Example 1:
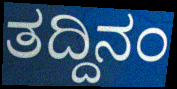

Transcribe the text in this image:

ತದ್ದಿನಂ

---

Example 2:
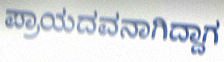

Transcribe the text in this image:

ಪ್ರಾಯದವನಾಗಿದ್ದಾಗ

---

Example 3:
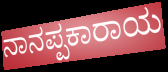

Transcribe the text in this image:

ನಾನಪ್ಪಕಾರಾಯ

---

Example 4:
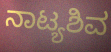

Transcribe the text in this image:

ನಾಟ್ಯಶಿವ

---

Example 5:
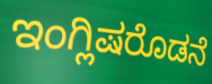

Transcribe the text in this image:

ಇಂಗ್ಲಿಷರೊಡನೆ